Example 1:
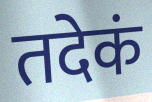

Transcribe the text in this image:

तदेकं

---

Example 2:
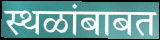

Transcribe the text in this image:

स्थळांबाबत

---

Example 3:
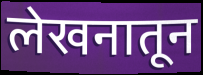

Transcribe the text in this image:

लेखनातून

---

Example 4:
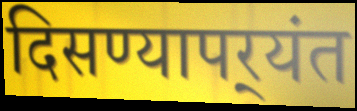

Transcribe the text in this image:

दिसण्यापर्यंत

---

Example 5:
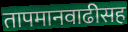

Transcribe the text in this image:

तापमानवाढीसह